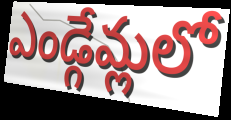
ఎండ్గేమ్లలో